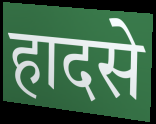
हादसे